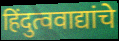
हिंदुत्ववाद्यांचे